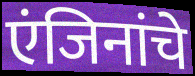
एंजिनांचे